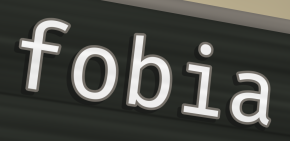
fobia